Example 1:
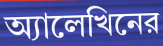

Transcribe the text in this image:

অ্যালেখিনের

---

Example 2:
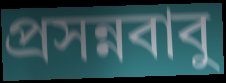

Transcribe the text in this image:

প্রসন্নবাবু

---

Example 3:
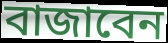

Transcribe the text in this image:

বাজাবেন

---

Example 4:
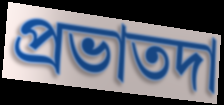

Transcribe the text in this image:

প্রভাতদা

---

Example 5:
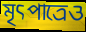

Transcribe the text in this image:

মৃৎপাত্রেও